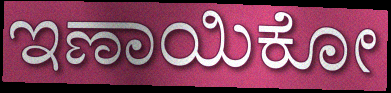
ಇಣಾಯಿಕೋ